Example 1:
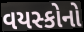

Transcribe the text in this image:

વયસ્કોનો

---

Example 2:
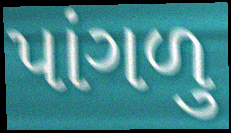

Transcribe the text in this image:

પાંગળુ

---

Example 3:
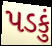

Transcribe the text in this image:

પડકું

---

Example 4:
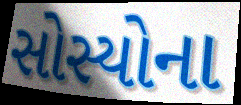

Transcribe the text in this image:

સોસ્યોના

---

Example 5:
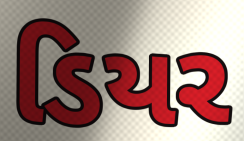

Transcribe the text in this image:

ડિયર